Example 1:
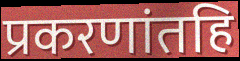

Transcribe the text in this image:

प्रकरणांतहि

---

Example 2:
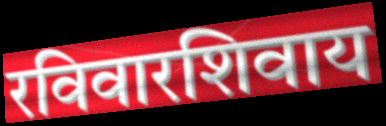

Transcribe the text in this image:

रविवारशिवाय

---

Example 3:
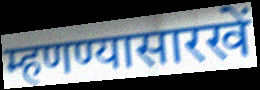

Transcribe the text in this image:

म्हणण्यासारखें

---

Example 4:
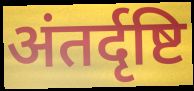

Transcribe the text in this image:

अंतर्दृष्टि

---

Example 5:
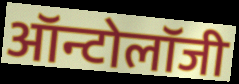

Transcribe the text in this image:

ऑन्टोलॉजी